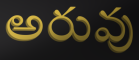
అరువు